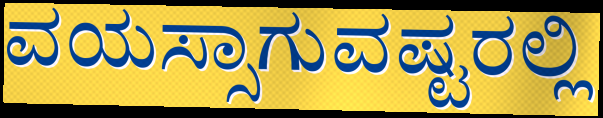
ವಯಸ್ಸಾಗುವಷ್ಟರಲ್ಲಿ